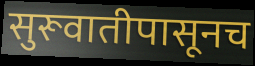
सुरूवातीपासूनच